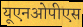
यूएनओपीएस